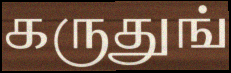
கருதுங்